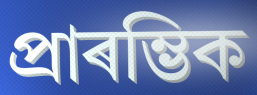
প্ৰাৰম্ভিক